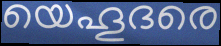
യെഹൂദരെ